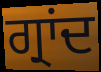
ਗ੍ਰਾਂਦ